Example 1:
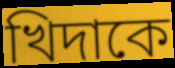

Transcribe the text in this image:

খিদাকে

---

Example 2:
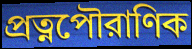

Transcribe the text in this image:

প্রত্নপৌরাণিক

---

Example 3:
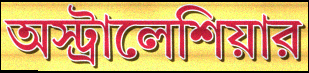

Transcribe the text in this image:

অস্ট্রালেশিয়ার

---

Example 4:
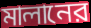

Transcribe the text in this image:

মালানের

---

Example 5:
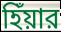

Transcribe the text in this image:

হিঁয়ার